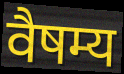
वैषम्‍य